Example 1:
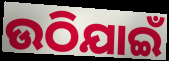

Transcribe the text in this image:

ଉଠିଯାଇଁ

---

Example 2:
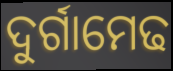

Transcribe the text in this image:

ଦୁର୍ଗାମେଢ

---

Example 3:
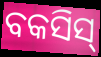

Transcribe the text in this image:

ବକସିସ୍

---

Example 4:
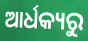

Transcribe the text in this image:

ଆର୍ଧକ୍ୟରୁ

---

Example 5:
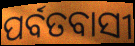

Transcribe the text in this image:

ପର୍ବତବାସୀ